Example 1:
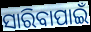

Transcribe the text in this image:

ସାରିବାପାଇଁ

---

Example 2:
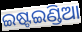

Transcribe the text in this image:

ଇଷ୍ଟଇଣ୍ଡିଆ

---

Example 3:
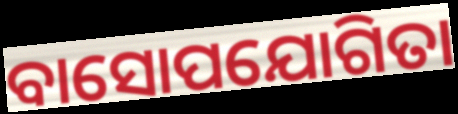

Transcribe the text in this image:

ବାସୋପଯୋଗିତା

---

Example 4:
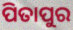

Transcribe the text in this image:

ପିତାପୁର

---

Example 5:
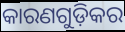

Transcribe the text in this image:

କାରଣଗୁଡ଼ିକର